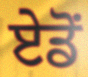
ਏਡੋਂ